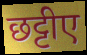
छट्टीए